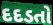
દદડતો